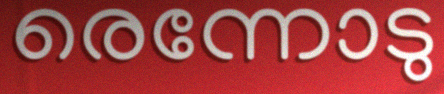
രെന്നോടു